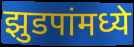
झुडपांमध्ये